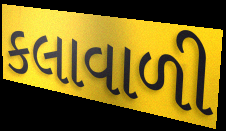
કલાવાળી